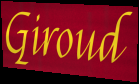
Giroud